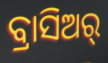
ବ୍ରାସିଅର୍